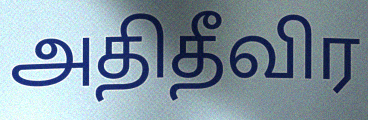
அதிதீவிர